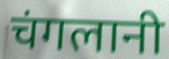
चंगलानी